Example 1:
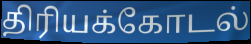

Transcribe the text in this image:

திரியக்கோடல்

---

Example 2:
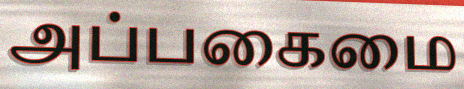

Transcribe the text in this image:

அப்பகைமை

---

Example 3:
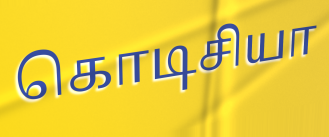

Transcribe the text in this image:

கொடிசியா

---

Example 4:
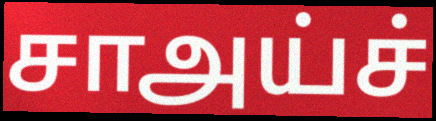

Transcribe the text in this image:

சாஅய்ச்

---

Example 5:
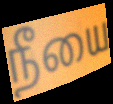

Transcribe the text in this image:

நீயை